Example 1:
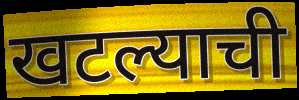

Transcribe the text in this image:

खटल्याची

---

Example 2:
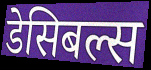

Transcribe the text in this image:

डेसिबल्स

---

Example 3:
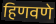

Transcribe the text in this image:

हिणवणे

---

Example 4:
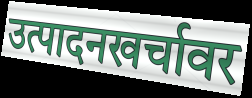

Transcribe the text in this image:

उत्पादनखर्चावर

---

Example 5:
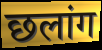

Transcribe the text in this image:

छलांग